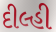
દીલ્હી